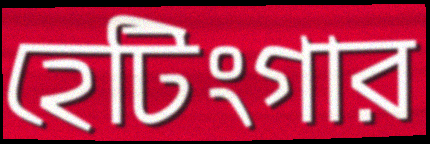
হেটিংগার